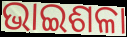
ଭାଇଶଳା